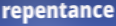
repentance